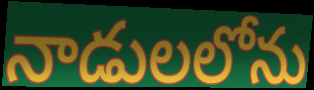
నాడులలోను